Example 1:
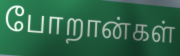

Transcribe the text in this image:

போறான்கள்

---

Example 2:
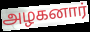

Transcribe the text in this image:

அழகனார்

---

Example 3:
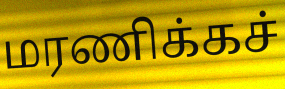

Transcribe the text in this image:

மரணிக்கச்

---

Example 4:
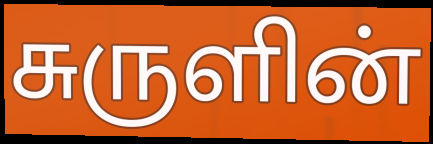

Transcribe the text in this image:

சுருளின்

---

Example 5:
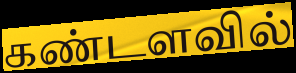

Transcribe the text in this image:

கண்டளவில்